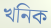
খনিক